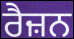
ਰੈਜ਼ਨ